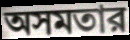
অসমতার